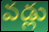
వడ్లు